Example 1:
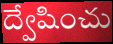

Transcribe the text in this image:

ద్వేషించు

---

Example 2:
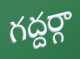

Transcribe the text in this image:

గద్దర్గా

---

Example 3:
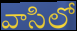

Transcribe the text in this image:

వాసిలో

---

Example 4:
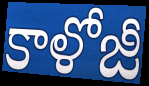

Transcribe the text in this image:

కాళోజీ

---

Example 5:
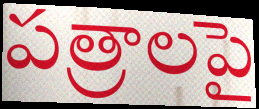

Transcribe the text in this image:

పత్రాలపై